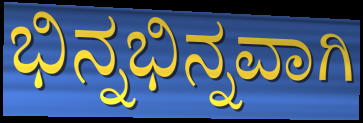
ಭಿನ್ನಭಿನ್ನವಾಗಿ